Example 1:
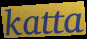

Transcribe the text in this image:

katta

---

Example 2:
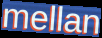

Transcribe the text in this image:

mellan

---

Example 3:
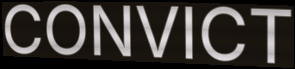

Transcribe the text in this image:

CONVICT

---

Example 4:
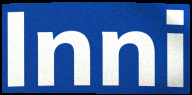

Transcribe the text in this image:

Inni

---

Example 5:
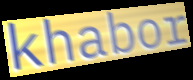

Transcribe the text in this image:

khabor